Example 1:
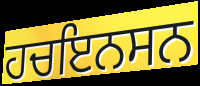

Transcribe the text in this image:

ਹਚਇਨਸਨ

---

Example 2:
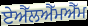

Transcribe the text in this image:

ਏਐੱਲਐੱਮਐੱਮ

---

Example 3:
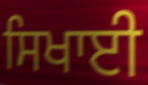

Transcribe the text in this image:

ਸਿਖਾਈ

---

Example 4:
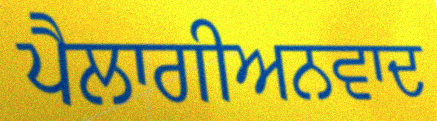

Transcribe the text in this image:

ਪੈਲਾਗੀਅਨਵਾਦ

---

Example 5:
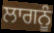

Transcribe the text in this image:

ਲਾਗਨੂੰ